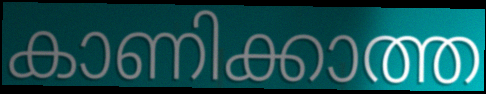
കാണിക്കാത്ത